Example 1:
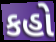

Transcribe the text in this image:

કહો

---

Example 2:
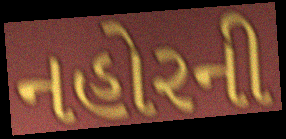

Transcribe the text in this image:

નહોરની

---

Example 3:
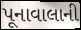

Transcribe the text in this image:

પૂનાવાલાની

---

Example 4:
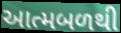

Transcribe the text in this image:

આત્મબળથી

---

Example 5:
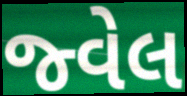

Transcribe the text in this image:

જ્વેલ